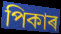
পিকাৰ